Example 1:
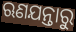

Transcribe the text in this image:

ଋଣଯନ୍ତାରୁ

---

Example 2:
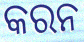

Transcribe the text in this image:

କରନ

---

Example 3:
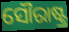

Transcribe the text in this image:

ସୌରାଷ୍ଟ୍ର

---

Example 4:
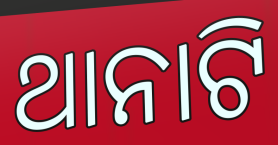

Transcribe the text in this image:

ଥାନାଟି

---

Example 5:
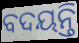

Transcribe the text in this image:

ବଦୟନ୍ତି